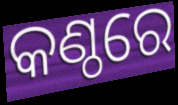
କଣ୍ଠରେ